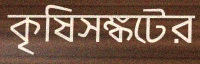
কৃষিসঙ্কটের